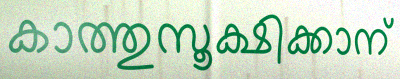
കാത്തുസൂക്ഷിക്കാന്